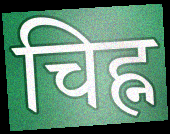
चिह्न